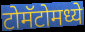
टोमॅटोमध्ये